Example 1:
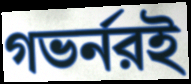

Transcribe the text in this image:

গভর্নরই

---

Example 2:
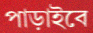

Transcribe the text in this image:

পাড়াইবে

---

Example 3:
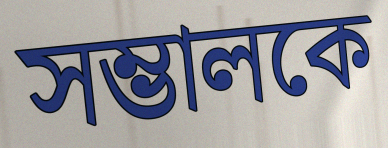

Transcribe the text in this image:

সম্ভালকে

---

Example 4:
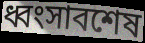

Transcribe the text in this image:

ধ্বংসাবশেষ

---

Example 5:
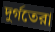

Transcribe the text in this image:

দুর্গতেরা